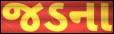
જડના